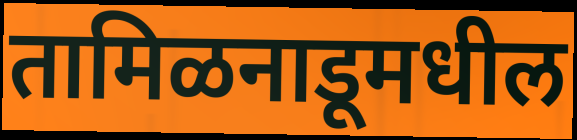
तामिळनाडूमधील